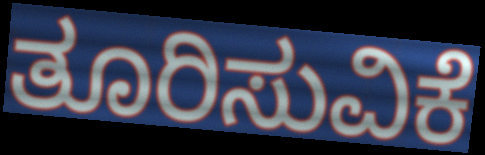
ತೂರಿಸುವಿಕೆ